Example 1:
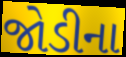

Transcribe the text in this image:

જોડીના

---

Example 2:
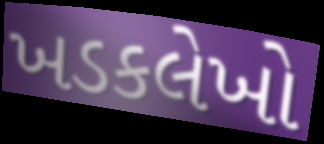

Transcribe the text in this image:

ખડકલેખો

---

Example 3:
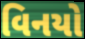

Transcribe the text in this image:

વિનયો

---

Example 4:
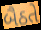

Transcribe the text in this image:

બૈઠતે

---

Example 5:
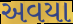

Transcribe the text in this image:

અવયા